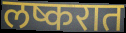
लष्करात